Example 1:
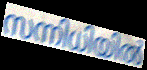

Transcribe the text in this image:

സന്നിധിയിൽ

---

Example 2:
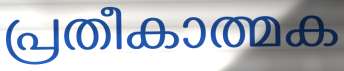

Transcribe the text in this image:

പ്രതീകാത്മക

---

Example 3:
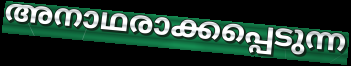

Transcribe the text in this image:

അനാഥരാക്കപ്പെടുന്ന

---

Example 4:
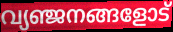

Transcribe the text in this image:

വ്യഞ്ജനങ്ങളോട്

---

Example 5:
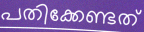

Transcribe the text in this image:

പതിക്കേണ്ടത്